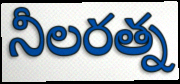
నీలరత్న